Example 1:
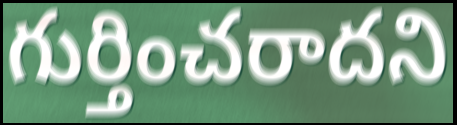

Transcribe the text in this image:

గుర్తించరాదని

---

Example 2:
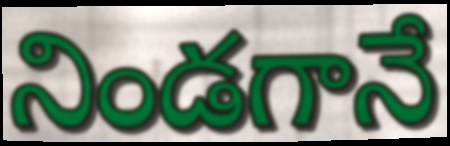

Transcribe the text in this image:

నిండగానే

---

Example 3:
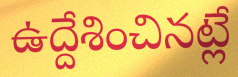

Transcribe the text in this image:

ఉద్దేశించినట్లే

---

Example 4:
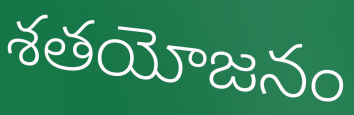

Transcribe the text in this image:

శతయోజనం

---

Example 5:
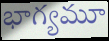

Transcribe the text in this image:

భాగ్యమూ